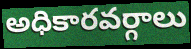
అధికారవర్గాలు